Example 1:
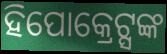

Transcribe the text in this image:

ହିପୋକ୍ରେଟ୍ସଙ୍କ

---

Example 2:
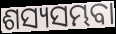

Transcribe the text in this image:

ଶସ୍ୟସମ୍ଭବା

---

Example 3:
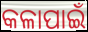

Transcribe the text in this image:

କଳାପାଇଁ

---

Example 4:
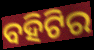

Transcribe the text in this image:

ବହିଟିର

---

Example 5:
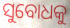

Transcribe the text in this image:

ସୁବୋଧକୁ